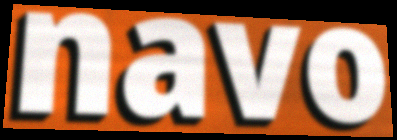
navo